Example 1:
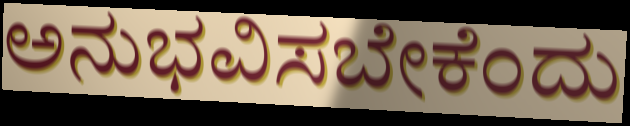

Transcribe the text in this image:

ಅನುಭವಿಸಬೇಕೆಂದು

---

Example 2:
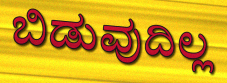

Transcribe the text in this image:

ಬಿಡುವುದಿಲ್ಲ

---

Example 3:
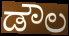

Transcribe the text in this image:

ಡೌಲ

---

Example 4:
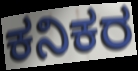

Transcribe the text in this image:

ಕನಿಕರ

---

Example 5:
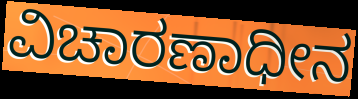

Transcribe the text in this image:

ವಿಚಾರಣಾಧೀನ